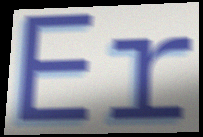
Er